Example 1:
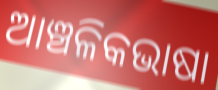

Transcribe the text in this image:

ଆଞ୍ଚଳିକଭାଷା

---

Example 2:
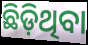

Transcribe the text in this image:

ଛିଡ଼ିଥିବା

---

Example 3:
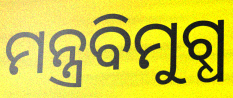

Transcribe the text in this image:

ମନ୍ତ୍ରବିମୁଗ୍ଧ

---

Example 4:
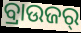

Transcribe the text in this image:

ବ୍ରାଉଜର୍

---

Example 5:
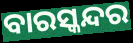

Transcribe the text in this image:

ବାରସ୍କନ୍ଦର